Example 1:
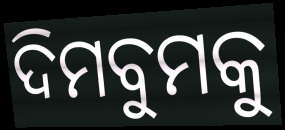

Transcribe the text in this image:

ଦିମବୁମକୁ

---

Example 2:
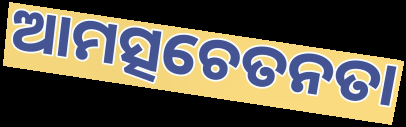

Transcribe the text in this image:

ଆମତ୍ସଚେତନତା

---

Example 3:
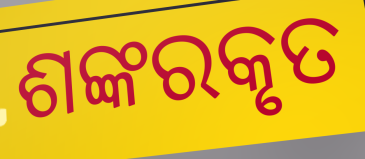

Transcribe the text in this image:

ଶଙ୍କରକୃତ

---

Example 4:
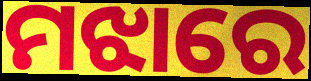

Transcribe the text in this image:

ମଝାରେ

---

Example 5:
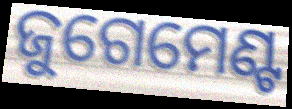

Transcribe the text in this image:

ଜୁଗେମେଣ୍ଟ